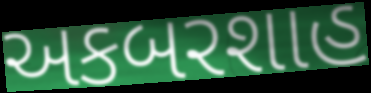
અકબરશાહ